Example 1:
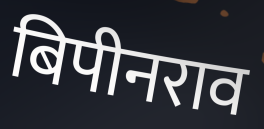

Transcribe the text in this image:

बिपीनराव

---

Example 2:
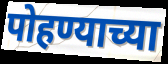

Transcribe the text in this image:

पोहण्याच्या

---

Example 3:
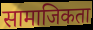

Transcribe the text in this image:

सामाजिकता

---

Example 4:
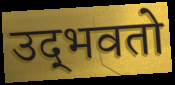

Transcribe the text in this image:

उद्‌भवतो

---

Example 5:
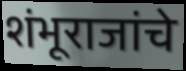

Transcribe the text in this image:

शंभूराजांचे